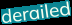
derailed